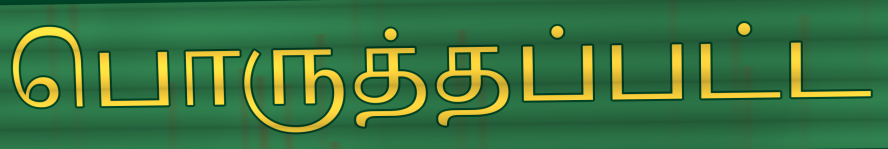
பொருத்தப்பட்ட